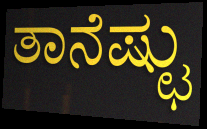
ತಾನೆಷ್ಟು